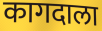
कागदाला